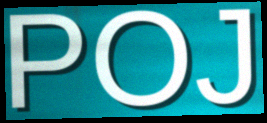
POJ